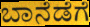
ಬಾನೆಡೆಗೆ